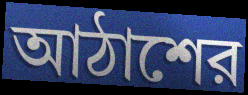
আঠাশের